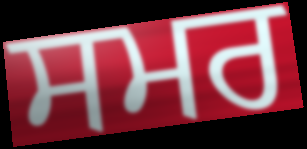
ਸਮਰ